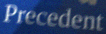
Precedent